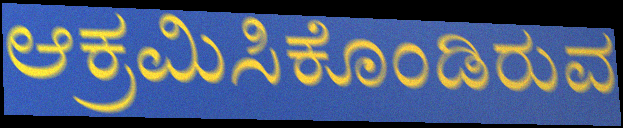
ಆಕ್ರಮಿಸಿಕೊಂಡಿರುವ